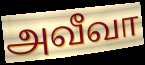
அவீவா